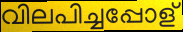
വിലപിച്ചപ്പോള്